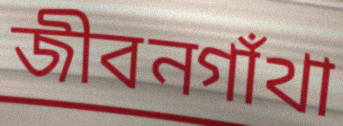
জীবনগাঁথা